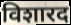
विशारद